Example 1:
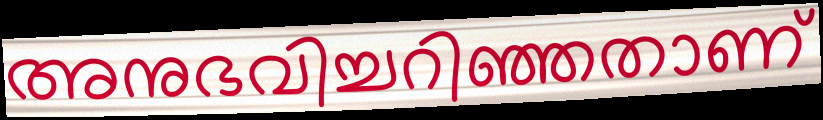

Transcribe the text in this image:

അനുഭവിച്ചറിഞ്ഞതാണ്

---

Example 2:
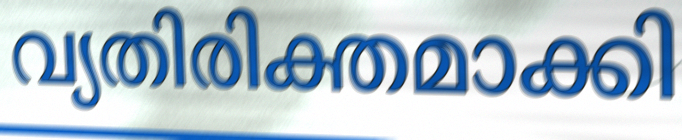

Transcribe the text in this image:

വ്യതിരിക്തമാക്കി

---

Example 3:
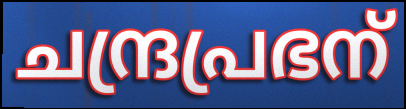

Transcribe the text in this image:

ചന്ദ്രപ്രഭന്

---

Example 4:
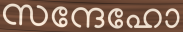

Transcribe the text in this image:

സന്ദേഹോ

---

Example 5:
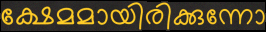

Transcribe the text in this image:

ക്ഷേമമായിരിക്കുന്നോ